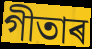
গীতাৰ